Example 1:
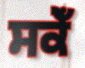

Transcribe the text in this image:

ਸਕੇਁ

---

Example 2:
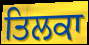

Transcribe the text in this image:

ਤਿਲਕਾ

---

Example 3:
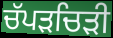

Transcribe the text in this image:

ਚੱਪੜਚਿੜੀ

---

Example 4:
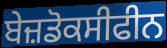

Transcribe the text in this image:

ਬੇਜ਼ਡੋਕਸੀਫੀਨ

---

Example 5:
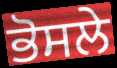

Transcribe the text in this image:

ਭੋਸਲੇ